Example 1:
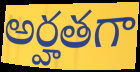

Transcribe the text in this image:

అర్హతగా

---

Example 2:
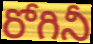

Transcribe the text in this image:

రోగినీ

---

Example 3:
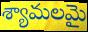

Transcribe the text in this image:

శ్యామలమై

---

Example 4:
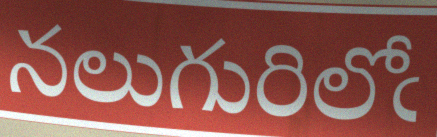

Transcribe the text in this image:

నలుగురిలోఁ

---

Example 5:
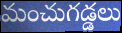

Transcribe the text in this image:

మంచుగడ్డలు